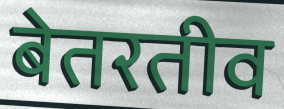
बेतरतीव